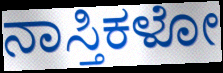
ನಾಸ್ತಿಕಳೋ